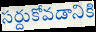
సర్దుకోవడానికి